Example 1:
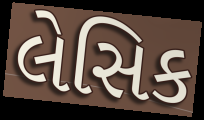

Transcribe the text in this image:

લેસિક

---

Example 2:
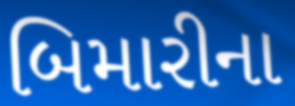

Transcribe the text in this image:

બિમારીના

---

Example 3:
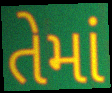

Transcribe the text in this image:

તેમાં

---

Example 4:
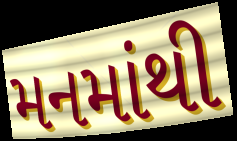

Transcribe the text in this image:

મનમાંથી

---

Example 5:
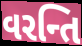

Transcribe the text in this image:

વરન્તિ